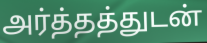
அர்த்தத்துடன்